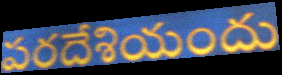
పరదేశియందు